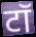
टॉ